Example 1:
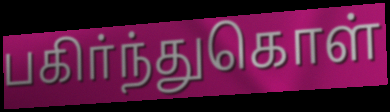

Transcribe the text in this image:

பகிர்ந்துகொள்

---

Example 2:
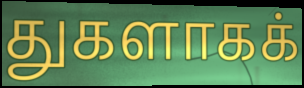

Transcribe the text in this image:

துகளாகக்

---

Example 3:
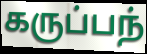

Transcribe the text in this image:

கருப்பந்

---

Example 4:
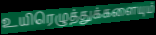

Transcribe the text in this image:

உயிரெழுத்துக்களையும்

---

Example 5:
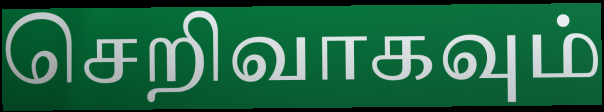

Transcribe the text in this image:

செறிவாகவும்